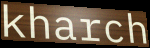
kharch